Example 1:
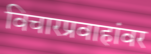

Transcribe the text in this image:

विचारप्रवाहांवर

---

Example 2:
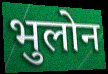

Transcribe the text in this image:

भुलोन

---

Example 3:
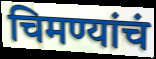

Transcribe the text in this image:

चिमण्यांचं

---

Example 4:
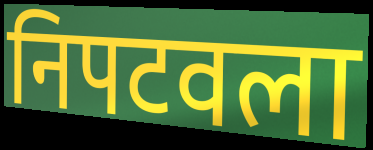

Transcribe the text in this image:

निपटवला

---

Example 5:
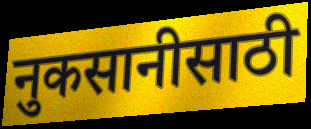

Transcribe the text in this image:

नुकसानीसाठी